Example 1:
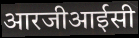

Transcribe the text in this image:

आरजीआईसी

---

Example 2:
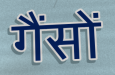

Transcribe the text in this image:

गैंसों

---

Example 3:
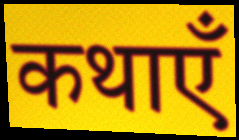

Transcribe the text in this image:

कथाएँ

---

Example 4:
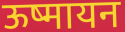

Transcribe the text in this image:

ऊष्मायन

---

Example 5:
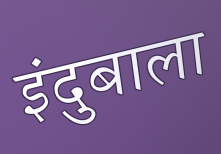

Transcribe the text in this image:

इंदुबाला